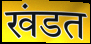
खंडत